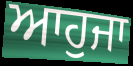
ਆਹੁਜਾ